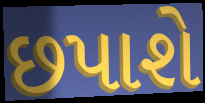
છપાશે